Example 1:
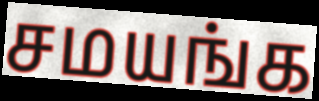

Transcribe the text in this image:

சமயங்க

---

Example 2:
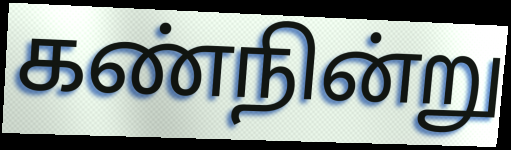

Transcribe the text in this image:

கண்நின்று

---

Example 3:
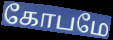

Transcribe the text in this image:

கோபமே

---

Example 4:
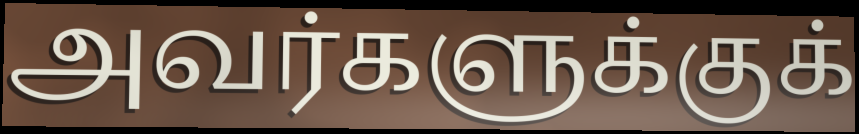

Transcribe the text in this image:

அவர்களுக்குக்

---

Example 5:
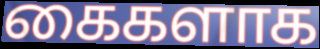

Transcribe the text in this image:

கைகளாக